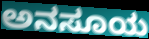
ಅನಸೂಯ